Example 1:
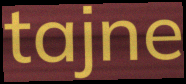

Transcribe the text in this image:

tajne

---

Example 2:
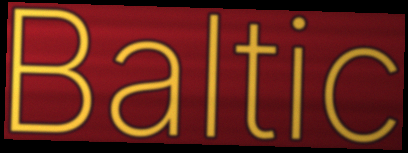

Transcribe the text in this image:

Baltic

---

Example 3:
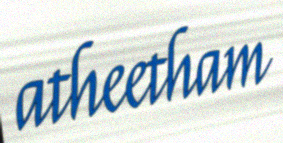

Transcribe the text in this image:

atheetham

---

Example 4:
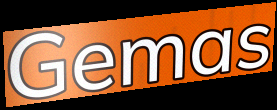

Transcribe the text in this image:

Gemas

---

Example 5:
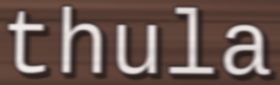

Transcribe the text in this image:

thula